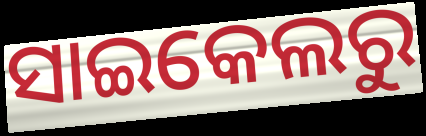
ସାଇକେଲରୁ